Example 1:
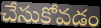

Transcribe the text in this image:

చేసుకోవడం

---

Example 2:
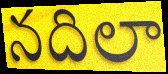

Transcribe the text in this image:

నదిలా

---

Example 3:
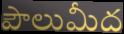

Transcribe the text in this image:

పౌలుమీద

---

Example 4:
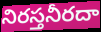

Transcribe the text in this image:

నిరస్తనీరదా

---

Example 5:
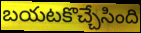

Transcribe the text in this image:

బయటకొచ్చేసింది